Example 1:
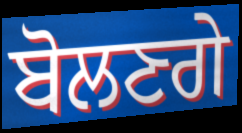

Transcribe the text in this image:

ਬੋਲਣਗੇ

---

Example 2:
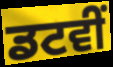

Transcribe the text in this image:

ਡਟਵੀਂ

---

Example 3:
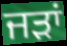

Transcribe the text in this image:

ਜੜਾਂ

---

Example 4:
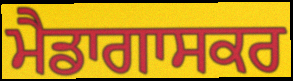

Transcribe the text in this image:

ਮੈਡਾਗਾਸਕਰ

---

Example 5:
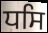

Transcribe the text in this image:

ਧਸਿ